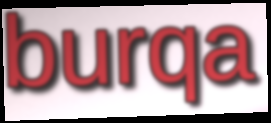
burqa